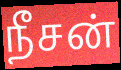
நீசன்